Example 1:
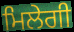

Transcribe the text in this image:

ਮਿਲੇਗੀ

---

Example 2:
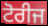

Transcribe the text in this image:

ਟੋਰੀਜ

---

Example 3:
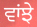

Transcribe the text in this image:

ਵਾਂਝੇ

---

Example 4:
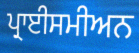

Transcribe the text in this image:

ਪ੍ਰਾਈਸਮੀਅਨ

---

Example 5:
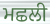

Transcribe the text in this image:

ਮਛਲੀ